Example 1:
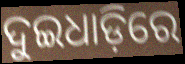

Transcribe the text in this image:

ଦୁଇଧାଡ଼ିରେ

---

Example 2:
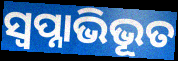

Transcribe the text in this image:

ସ୍ଵପ୍ନାଭିଭୂତ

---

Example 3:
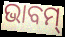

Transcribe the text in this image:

ଭାବମ୍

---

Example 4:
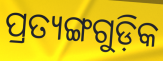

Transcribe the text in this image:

ପ୍ରତ୍ୟଙ୍ଗଗୁଡ଼ିକ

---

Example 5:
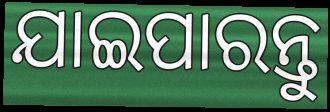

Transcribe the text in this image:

ଯାଇପାରନ୍ତୁ